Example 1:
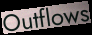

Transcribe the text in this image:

Outflows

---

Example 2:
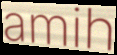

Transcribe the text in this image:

amih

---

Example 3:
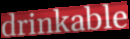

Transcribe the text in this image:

drinkable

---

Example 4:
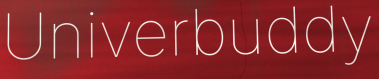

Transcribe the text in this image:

Univerbuddy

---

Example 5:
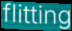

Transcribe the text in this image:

flitting